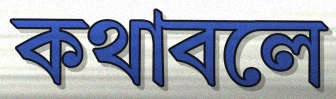
কথাবলে